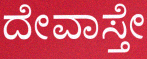
ದೇವಾಸ್ತೇ